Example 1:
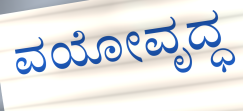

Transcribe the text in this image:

ವಯೋವೃದ್ಧ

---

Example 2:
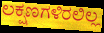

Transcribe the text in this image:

ಲಕ್ಷಣಗಳಿರಲಿಲ್ಲ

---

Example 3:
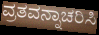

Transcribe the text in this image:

ವ್ರತವನ್ನಾಚರಿಸಿ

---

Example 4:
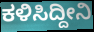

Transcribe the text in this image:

ಕಳಿಸಿದ್ದೀನಿ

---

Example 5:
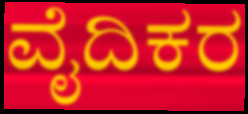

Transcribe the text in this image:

ವೈದಿಕರ